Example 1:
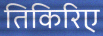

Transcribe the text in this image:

तिकिरिए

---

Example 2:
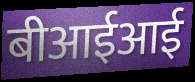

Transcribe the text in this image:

बीआईआई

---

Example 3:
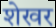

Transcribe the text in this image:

शेखर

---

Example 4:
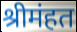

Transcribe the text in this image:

श्रीमंहत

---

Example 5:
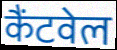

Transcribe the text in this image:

कैंटवेल